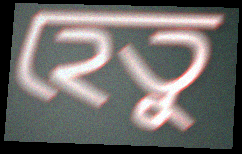
হেতু